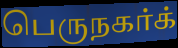
பெருநகர்க்